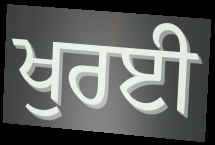
ਖੁਰਈ